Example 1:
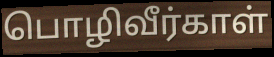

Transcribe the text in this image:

பொழிவீர்காள்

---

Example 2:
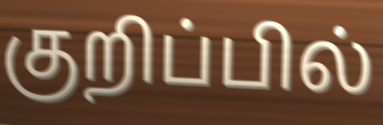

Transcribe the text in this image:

குறிப்பில்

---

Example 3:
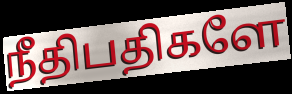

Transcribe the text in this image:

நீதிபதிகளே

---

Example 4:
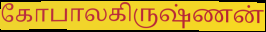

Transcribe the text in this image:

கோபாலகிருஷ்ணன்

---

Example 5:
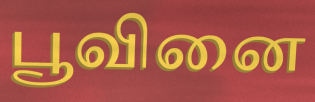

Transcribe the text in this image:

பூவினை